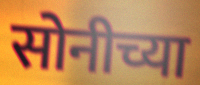
सोनीच्या